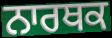
ਨਾਰਥਕ